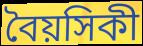
বৈয়সিকী